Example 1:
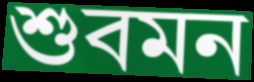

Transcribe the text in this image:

শুবমন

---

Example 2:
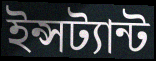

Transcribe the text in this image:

ইন্সট্যান্ট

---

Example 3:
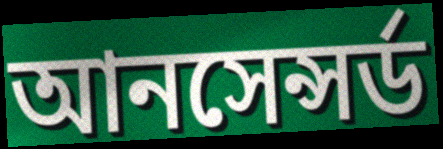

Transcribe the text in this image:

আনসেন্সর্ড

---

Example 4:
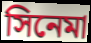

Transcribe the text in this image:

সিনেমা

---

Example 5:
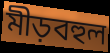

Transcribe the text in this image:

মীড়বহুল